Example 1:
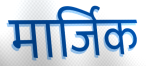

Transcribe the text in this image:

मार्जिक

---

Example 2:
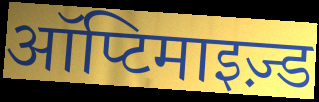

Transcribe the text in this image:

ऑप्टिमाइज़्ड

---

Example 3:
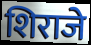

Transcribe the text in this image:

शिराजे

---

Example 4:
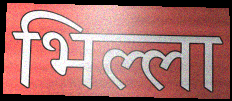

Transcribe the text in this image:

भिल्ला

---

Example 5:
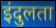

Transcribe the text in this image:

इंदुलता